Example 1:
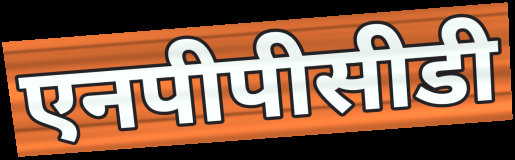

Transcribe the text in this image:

एनपीपीसीडी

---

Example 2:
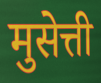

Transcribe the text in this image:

मुसेत्ती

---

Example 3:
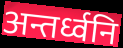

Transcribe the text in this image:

अन्तर्ध्वनि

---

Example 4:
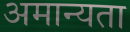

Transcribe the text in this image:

अमान्यता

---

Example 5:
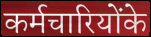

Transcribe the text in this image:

कर्मचारियोंके